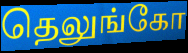
தெலுங்கோ